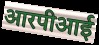
आरपीआई